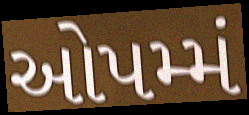
ઓપમ્મં